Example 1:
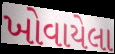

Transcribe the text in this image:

ખોવાયેલા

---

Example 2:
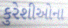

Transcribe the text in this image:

કુરેશીઓના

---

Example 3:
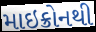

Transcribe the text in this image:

માઇક્રોનથી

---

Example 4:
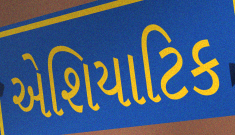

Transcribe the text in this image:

એશિયાટિક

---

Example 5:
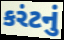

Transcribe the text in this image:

કરંટનું